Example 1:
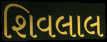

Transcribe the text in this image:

શિવલાલ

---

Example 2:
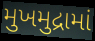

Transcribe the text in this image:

મુખમુદ્રામાં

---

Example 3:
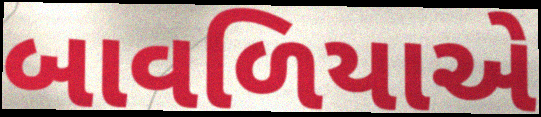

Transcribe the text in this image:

બાવળિયાએ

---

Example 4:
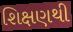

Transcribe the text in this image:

શિક્ષણથી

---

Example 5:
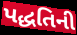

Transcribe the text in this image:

પદ્ધતિની